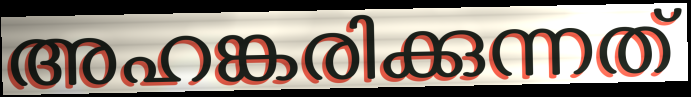
അഹങ്കരിക്കുന്നത്